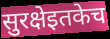
सुरक्षेइतकेच